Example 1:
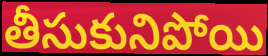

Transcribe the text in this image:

తీసుకునిపోయి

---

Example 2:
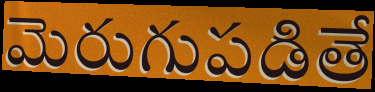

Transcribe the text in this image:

మెరుగుపడితే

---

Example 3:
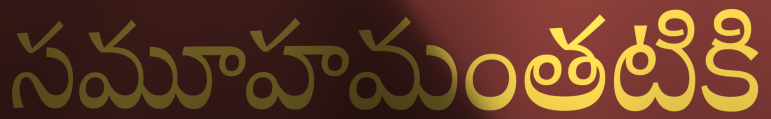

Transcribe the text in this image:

సమూహమంతటికి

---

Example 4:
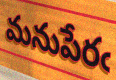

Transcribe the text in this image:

మనుపేరఁ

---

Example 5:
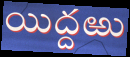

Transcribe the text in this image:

యిద్దఱు